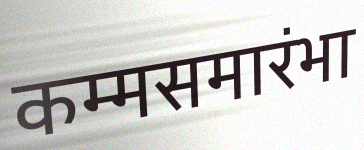
कम्मसमारंभा